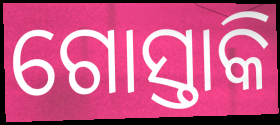
ଗୋସ୍ତାକି